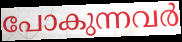
പോകുന്നവർ